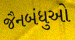
જૈનબંધુઓ